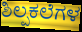
ಶಿಲ್ಪಕಲೆಗಳ